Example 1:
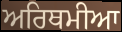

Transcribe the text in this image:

ਅਰਿਥਮੀਆ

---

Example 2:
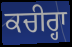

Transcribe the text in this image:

ਕਚੀਰ੍ਹਾ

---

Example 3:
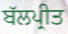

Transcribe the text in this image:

ਬੱਲਪ੍ਰੀਤ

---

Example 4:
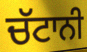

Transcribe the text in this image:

ਚੱਟਾਨੀ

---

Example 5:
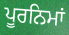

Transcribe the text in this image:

ਪੂਰਨਿਮਾਂ